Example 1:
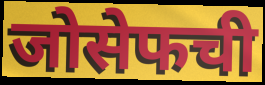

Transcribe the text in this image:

जोसेफची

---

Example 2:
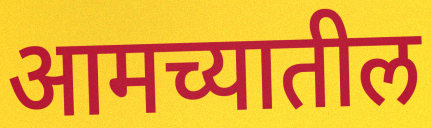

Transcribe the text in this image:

आमच्यातील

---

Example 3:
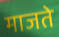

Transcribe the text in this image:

माजते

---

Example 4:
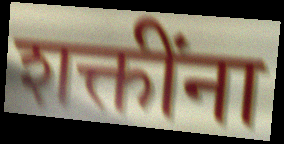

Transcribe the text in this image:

शक्तींना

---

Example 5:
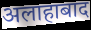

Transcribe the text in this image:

अलाहाबाद